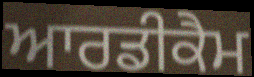
ਆਰਡੀਕੈਮ